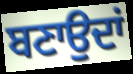
ਬਣਾਉਦਾਂ